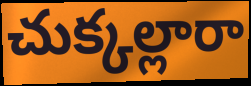
చుక్కల్లారా